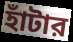
হাঁটার